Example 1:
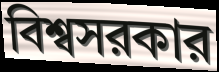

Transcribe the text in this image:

বিশ্বসরকার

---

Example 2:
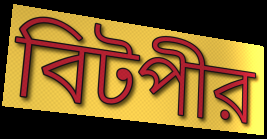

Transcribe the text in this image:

বিটপীর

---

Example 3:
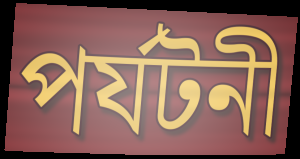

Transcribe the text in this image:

পর্যটনী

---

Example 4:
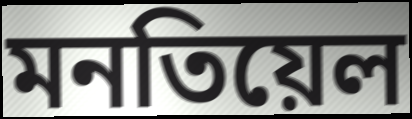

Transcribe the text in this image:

মনতিয়েল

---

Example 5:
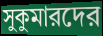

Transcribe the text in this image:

সুকুমারদের